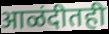
आळंदीतही